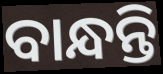
ବାନ୍ଧନ୍ତି